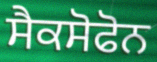
ਸੈਕਸੋਫੋਨ